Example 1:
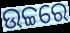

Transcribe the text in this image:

ଉଚ୍ଚରେ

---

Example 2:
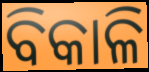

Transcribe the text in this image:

ବିକାଳି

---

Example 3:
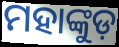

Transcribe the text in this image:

ମହାଙ୍କୁଡ଼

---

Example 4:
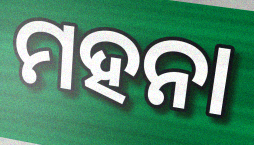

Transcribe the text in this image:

ମହନା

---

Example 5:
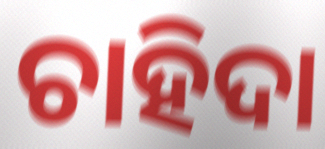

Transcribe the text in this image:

ଚାହିଦା